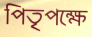
পিতৃপক্ষে